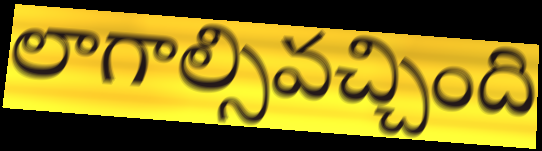
లాగాల్సివచ్చింది